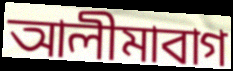
আলীমাবাগ